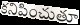
కనిపించుతూ